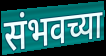
संभवच्या